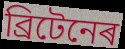
ব্ৰিটেনেৰ